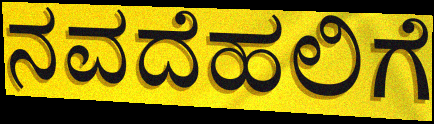
ನವದೆಹಲಿಗೆ